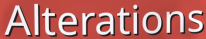
Alterations